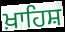
ਖ਼ਾਹਿਸ਼